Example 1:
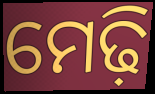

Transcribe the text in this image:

ମେଢ଼ି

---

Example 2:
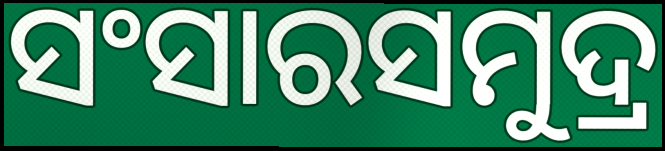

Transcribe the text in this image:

ସଂସାରସମୁଦ୍ର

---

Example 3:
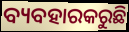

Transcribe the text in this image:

ବ୍ୟବହାରକରୁଛି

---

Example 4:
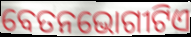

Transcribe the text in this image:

ବେତନଭୋଗୀଟିଏ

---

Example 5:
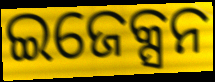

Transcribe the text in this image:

ଇଜେକ୍ସନ